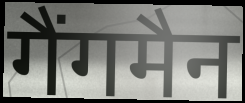
गैंगमैन